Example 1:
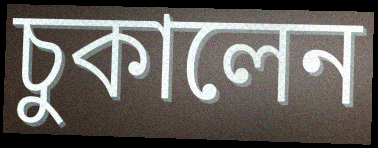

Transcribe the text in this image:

চুকালেন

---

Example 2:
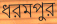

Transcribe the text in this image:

ধরমপুর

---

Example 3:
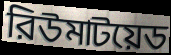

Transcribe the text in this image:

রিউমাটয়েড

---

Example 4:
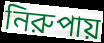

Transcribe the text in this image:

নিরুপায়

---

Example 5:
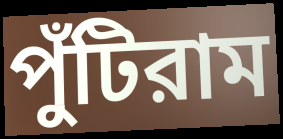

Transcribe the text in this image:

পুঁটিরাম